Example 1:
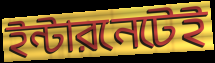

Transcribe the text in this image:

ইন্টারনেটেই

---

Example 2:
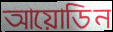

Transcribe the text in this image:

আয়োডিন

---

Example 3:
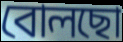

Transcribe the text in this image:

বোলছো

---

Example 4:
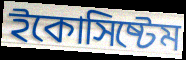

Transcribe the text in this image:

ইকোসিষ্টেম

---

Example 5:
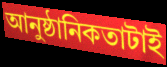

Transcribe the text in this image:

আনুষ্ঠানিকতাটাই